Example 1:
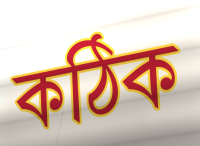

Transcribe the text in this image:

কঠিক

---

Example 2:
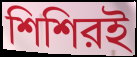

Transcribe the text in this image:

শিশিরই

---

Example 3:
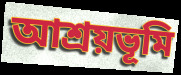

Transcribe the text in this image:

আশ্রয়ভূমি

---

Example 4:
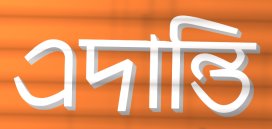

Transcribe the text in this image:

এদান্তি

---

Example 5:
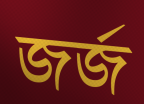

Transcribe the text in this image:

জর্জ